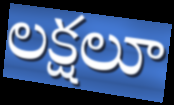
లక్షలూ